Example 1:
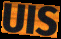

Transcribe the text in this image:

UIS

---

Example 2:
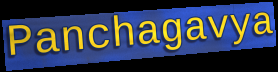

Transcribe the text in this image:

Panchagavya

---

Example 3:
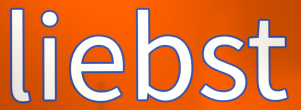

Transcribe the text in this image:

liebst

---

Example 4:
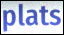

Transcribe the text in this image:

plats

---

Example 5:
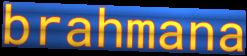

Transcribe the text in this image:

brahmana